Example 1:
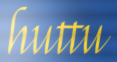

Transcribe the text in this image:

huttu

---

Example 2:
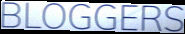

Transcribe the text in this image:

BLOGGERS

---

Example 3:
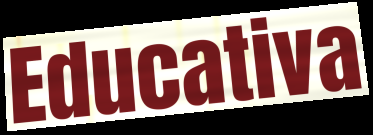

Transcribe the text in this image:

Educativa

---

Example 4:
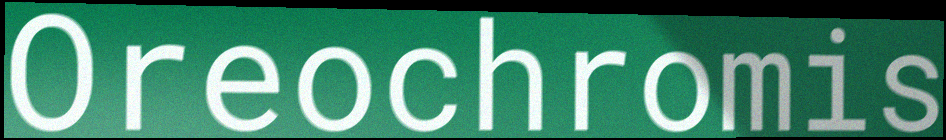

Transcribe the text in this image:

Oreochromis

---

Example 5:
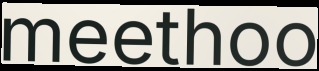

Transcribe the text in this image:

meethoo